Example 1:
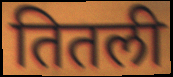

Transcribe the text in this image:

तितली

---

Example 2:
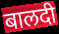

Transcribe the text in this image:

बालदी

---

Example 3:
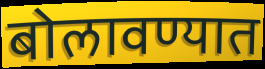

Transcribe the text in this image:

बोलावण्यात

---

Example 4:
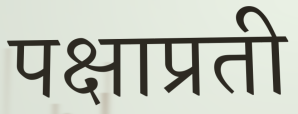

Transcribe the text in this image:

पक्षाप्रती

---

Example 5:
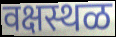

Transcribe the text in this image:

वक्षस्थळ